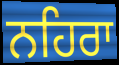
ਨਹਿਰਾ